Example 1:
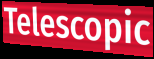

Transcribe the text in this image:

Telescopic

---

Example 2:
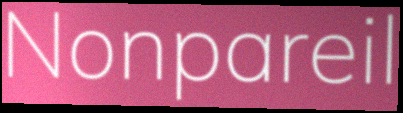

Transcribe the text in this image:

Nonpareil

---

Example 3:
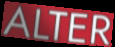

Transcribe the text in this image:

ALTER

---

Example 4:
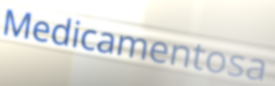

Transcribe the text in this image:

Medicamentosa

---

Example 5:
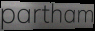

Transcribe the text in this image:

partham